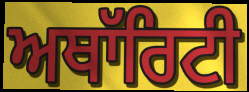
ਅਥਾੱਰਿਟੀ